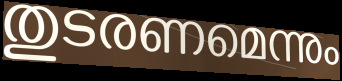
തുടരണമെന്നും